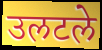
उलटले